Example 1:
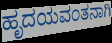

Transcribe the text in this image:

ಹೃದಯವಂತನಾಗಿ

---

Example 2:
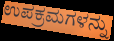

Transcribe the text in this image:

ಉಪಕ್ರಮಗಳನ್ನು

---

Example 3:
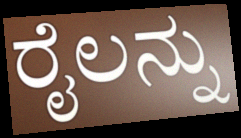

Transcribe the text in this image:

ರೈಲನ್ನು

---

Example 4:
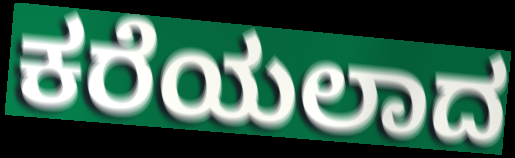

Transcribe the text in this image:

ಕರೆಯಲಾದ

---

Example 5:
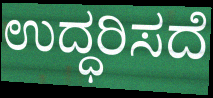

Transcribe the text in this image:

ಉದ್ಧರಿಸದೆ